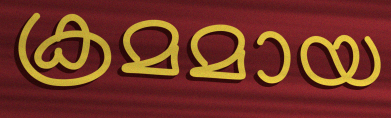
ക്രമമായ